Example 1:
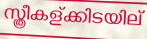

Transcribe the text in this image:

സ്ത്രീകള്ക്കിടയില്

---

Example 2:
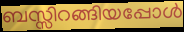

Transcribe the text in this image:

ബസ്സിറങ്ങിയപ്പോൾ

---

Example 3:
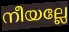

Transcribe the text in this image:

നീയല്ലേ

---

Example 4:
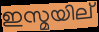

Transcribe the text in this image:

ഇസ്മയില്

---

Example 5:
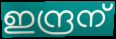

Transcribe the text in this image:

ഇന്ദ്രന്